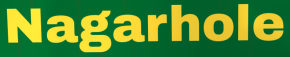
Nagarhole